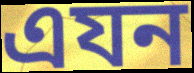
এযন